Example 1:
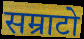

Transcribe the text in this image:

सम्राटो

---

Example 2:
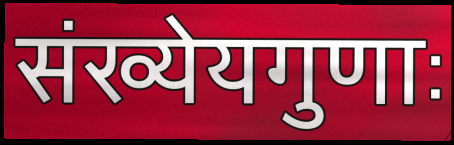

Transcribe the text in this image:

संख्येयगुणाः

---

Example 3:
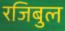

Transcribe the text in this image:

रजिबुल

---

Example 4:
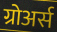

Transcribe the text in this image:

ग्रोअर्स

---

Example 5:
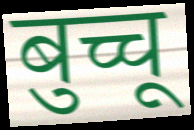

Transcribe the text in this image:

बुच्चू